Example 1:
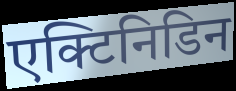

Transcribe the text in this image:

एक्टिनिडिन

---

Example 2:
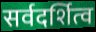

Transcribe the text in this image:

सर्वदर्शित्व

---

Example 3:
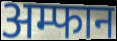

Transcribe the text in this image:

अम्‍फान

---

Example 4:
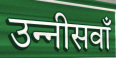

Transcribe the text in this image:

उन्‍नीसवाँ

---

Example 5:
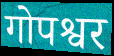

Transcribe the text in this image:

गोपश्वर